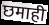
छमाही